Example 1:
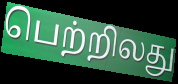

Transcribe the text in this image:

பெற்றிலது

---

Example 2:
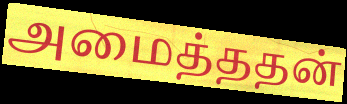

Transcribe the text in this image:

அமைத்ததன்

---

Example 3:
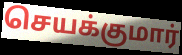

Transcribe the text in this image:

செயக்குமார்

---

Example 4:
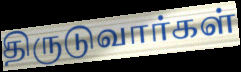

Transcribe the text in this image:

திருடுவார்கள்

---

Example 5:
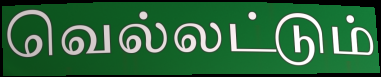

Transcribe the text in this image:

வெல்லட்டும்